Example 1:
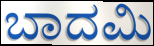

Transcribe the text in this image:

ಬಾದಮಿ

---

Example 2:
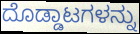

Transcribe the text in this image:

ದೊಡ್ಡಾಟಗಳನ್ನು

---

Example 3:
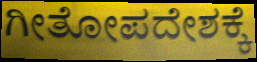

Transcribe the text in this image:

ಗೀತೋಪದೇಶಕ್ಕೆ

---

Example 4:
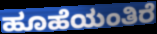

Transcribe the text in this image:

ಹೂಹೆಯಂತಿರೆ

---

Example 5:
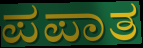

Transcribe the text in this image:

ಪಪಾತ